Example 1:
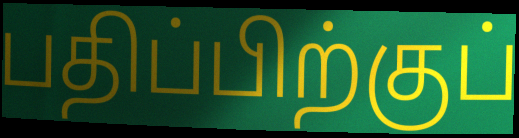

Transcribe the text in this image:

பதிப்பிற்குப்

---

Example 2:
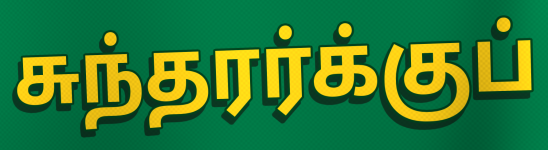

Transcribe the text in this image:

சுந்தரர்க்குப்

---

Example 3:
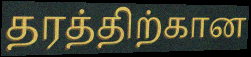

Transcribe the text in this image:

தரத்திற்கான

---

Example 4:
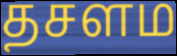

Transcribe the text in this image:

தசளம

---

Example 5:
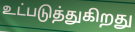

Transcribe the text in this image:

உட்படுத்துகிறது